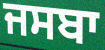
ਜਸਬਾ